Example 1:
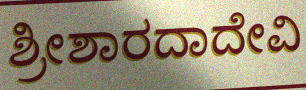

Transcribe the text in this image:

ಶ್ರೀಶಾರದಾದೇವಿ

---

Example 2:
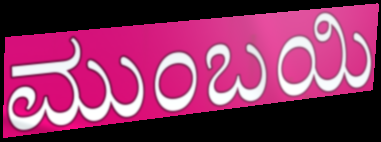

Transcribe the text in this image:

ಮುಂಬಯಿ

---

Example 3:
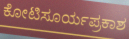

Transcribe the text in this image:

ಕೋಟಿಸೂರ್ಯಪ್ರಕಾಶ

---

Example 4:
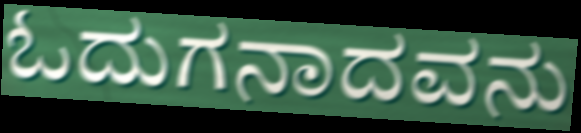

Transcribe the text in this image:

ಓದುಗನಾದವನು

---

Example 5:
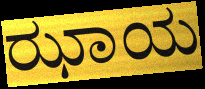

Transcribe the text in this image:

ಝಾಯ